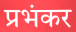
प्रभंकर